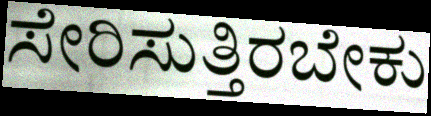
ಸೇರಿಸುತ್ತಿರಬೇಕು